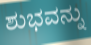
ಶುಭವನ್ನು